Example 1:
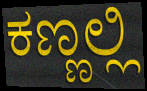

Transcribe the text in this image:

ಕಣ್ಣಲ್ಲಿ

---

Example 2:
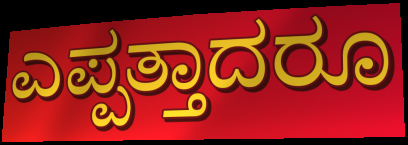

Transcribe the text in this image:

ಎಪ್ಪತ್ತಾದರೂ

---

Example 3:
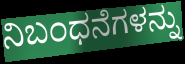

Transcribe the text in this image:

ನಿಬಂಧನೆಗಳನ್ನು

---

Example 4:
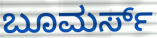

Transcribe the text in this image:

ಬೂಮರ್ಸ್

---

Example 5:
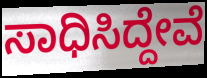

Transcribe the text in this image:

ಸಾಧಿಸಿದ್ದೇವೆ